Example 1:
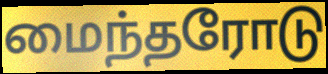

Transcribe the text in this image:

மைந்தரோடு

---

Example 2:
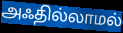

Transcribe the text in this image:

அஃதில்லாமல்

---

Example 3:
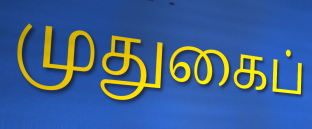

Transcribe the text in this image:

முதுகைப்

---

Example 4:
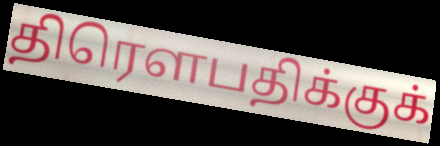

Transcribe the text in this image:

திரௌபதிக்குக்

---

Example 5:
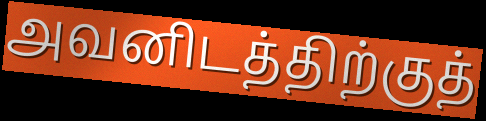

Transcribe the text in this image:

அவனிடத்திற்குத்